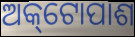
ଅକ୍‌ଟୋପାଶ